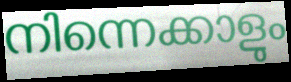
നിന്നെക്കാളും